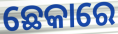
ଛେକାରେ